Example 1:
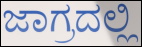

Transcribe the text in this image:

ಜಾಗ್ರದಲ್ಲಿ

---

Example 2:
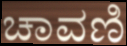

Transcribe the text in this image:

ಚಾವಣಿ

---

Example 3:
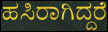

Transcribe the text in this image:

ಹಸಿರಾಗಿದ್ದರೆ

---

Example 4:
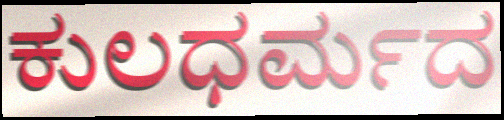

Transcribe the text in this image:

ಕುಲಧರ್ಮದ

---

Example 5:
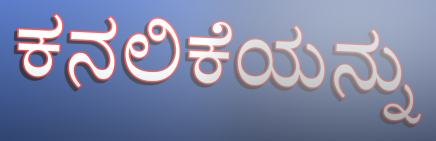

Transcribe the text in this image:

ಕನಲಿಕೆಯನ್ನು